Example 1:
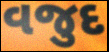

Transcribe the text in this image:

વજુદ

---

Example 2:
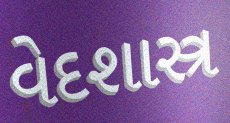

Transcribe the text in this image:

વેદશાસ્ત્ર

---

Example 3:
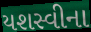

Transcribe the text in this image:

યશસ્વીના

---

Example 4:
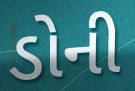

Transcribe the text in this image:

ડોની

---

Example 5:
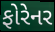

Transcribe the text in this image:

ફોરેનર